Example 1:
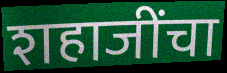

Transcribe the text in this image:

शहाजींचा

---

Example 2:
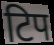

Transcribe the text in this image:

टिप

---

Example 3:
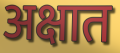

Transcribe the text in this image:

अक्षात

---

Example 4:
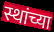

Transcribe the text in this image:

स्थांच्या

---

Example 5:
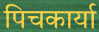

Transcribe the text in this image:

पिचकार्या